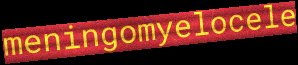
meningomyelocele